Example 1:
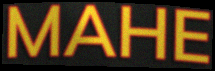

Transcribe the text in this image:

MAHE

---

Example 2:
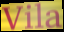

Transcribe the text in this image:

Vila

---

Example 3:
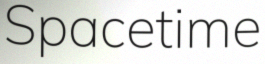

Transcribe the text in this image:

Spacetime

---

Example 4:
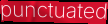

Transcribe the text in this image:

punctuated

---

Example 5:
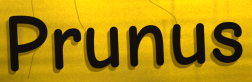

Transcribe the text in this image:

Prunus